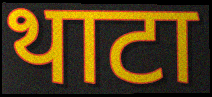
थाटा